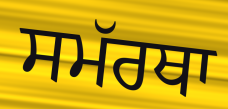
ਸਮੱਰਥਾ